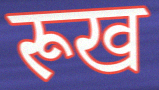
रूख